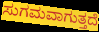
ಸುಗಮವಾಗುತ್ತದೆ